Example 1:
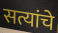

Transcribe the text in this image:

सत्यांचे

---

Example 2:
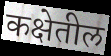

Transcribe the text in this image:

कक्षेतील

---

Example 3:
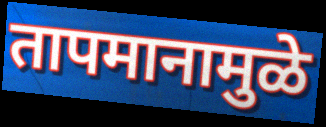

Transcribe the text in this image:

तापमानामुळे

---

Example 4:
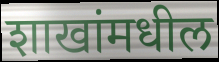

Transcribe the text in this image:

शाखांमधील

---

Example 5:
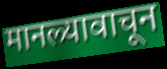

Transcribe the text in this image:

मानल्यावाचून